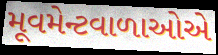
મૂવમેન્ટવાળાઓએ